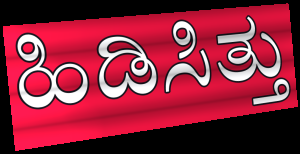
ಹಿಡಿಸಿತ್ತು